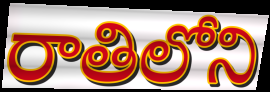
రాతిలోని